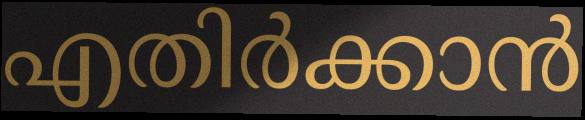
എതിർക്കാൻ